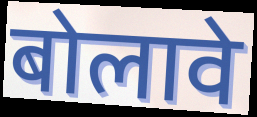
बोलावे